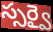
స్సర్వై